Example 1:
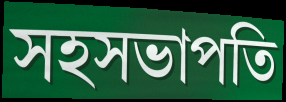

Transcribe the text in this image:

সহসভাপতি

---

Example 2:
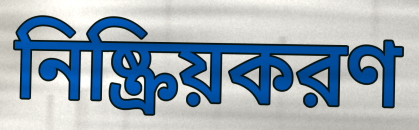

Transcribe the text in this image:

নিষ্ক্রিয়করণ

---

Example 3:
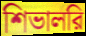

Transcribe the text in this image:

শিভালরি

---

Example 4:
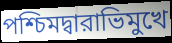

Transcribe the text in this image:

পশ্চিমদ্বারাভিমুখে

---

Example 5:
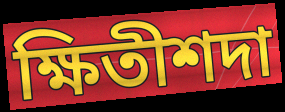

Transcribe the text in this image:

ক্ষিতীশদা